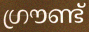
ഗ്രൗണ്ട്